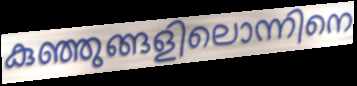
കുഞ്ഞുങ്ങളിലൊന്നിനെ